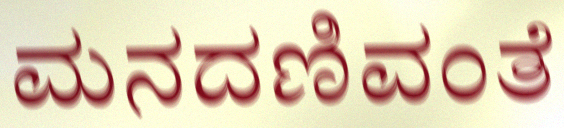
ಮನದಣಿವಂತೆ